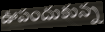
ఊపందుకున్న